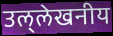
उल्लेखनीय